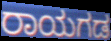
ರಾಯಗಡ